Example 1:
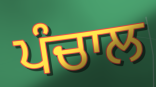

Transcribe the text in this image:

ਪੰਚਾਲ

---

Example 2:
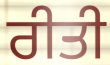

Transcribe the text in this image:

ਰੀਤੀ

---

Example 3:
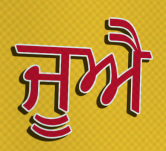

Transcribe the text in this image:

ਜੂਐ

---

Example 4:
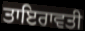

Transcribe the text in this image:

ਤਾਇਰਾਵਤੀ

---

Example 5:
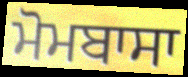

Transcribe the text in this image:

ਮੋਮਬਾਸਾ